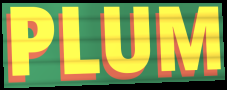
PLUM